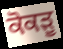
ਕੋਕੜੂ